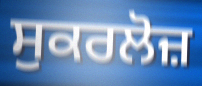
ਸੁਕਰਲੋਜ਼